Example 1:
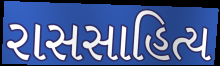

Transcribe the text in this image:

રાસસાહિત્ય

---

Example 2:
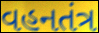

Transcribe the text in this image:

વહનતંત્ર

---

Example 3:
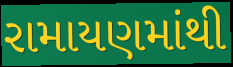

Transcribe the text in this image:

રામાયણમાંથી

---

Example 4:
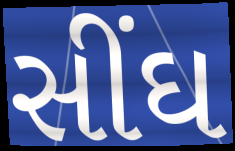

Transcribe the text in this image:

સીંઘ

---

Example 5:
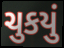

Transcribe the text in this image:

ચુકયું